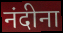
नंदीना